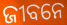
ଜୀବନେ